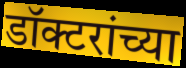
डॉक्टरांच्या